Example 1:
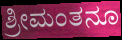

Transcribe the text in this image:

ಶ್ರೀಮಂತನೂ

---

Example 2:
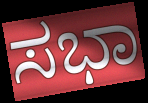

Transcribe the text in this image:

ಸಭಾ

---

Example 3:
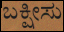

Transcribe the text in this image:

ಬಕ್ಷೀಸು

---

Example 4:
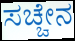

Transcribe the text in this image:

ಸಚ್ಚೇನ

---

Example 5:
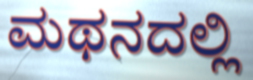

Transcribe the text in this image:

ಮಥನದಲ್ಲಿ